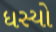
ધસ્યો